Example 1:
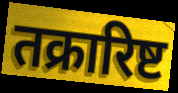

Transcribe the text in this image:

तक्रारिष्ट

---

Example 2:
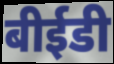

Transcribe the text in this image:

बीईडी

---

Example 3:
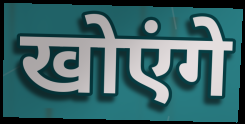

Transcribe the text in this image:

खोएंगे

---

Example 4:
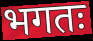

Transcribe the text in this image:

भगतः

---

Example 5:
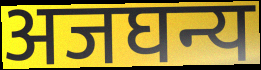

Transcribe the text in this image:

अजघन्य